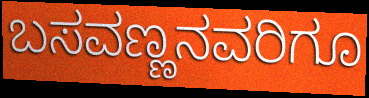
ಬಸವಣ್ಣನವರಿಗೂ